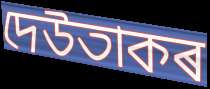
দেউতাকৰ